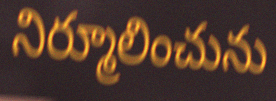
నిర్మూలించును